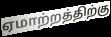
ஏமாற்றத்திற்கு